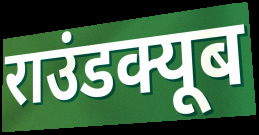
राउंडक्यूब